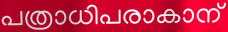
പത്രാധിപരാകാന്